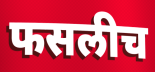
फसलीच